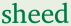
sheed